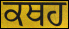
ਕਥਹ